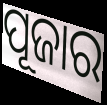
ପୂଜାର